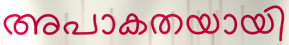
അപാകതയായി